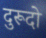
दुरूदो